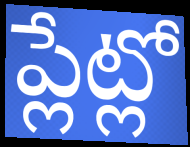
ప్లేట్లో